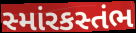
સ્માંરકસ્તંભ